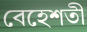
বেহেশতী